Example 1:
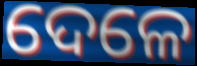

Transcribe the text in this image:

ଦେଳେ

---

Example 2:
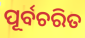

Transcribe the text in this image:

ପୂର୍ବଚରିତ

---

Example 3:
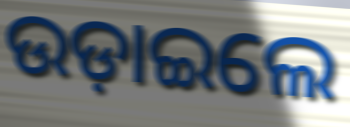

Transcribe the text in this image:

ଉଡ଼ାଇଲେ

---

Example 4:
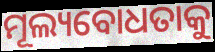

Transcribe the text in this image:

ମୂଲ୍ୟବୋଧତାକୁ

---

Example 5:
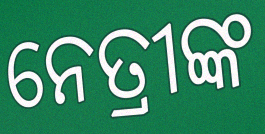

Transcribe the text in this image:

ନେତ୍ରୀଙ୍କ